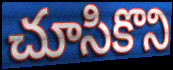
చూసికొని